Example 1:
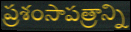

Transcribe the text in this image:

ప్రశంసాపత్రాన్ని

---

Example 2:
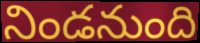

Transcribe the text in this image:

నిండనుంది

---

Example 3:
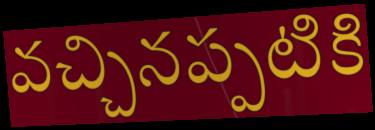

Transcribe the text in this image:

వచ్చినప్పటికి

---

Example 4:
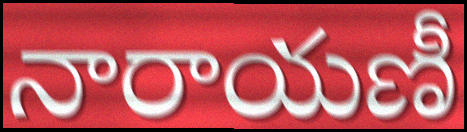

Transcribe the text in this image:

నారాయణీ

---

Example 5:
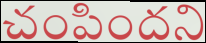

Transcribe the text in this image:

చంపిందని